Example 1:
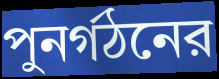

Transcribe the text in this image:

পুনর্গঠনের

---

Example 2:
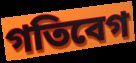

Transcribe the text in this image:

গতিবেগ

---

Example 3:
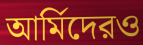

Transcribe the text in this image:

আর্মিদেরও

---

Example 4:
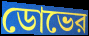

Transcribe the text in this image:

ডোভের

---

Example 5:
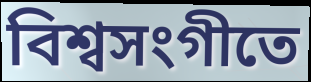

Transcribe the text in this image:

বিশ্বসংগীতে